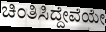
ಚಿಂತಿಸಿದ್ದೇವೆಯೇ